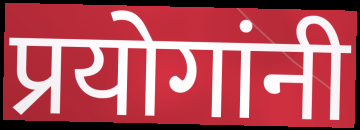
प्रयोगांनी